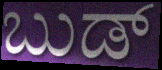
ಬುಡ್